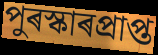
পুৰস্কাৰপ্ৰাপ্ত